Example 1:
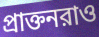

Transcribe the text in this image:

প্রাক্তনরাও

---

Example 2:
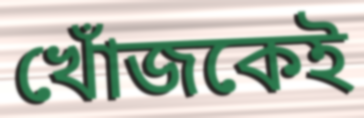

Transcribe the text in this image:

খোঁজকেই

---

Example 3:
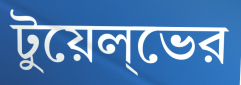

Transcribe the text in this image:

টুয়েল্ভের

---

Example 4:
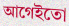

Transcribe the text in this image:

আগেইতো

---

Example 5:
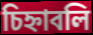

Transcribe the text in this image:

চিহ্নাবলি